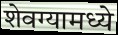
शेवग्यामध्ये